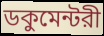
ডকুমেন্টরী